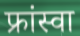
फ्रांस्वा